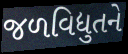
જળવિદ્યુતને